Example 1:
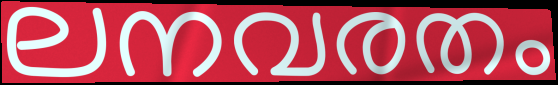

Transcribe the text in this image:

ലനവരതം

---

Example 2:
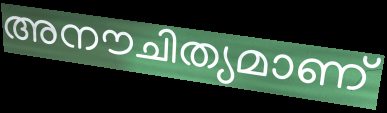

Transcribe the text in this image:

അനൗചിത്യമാണ്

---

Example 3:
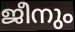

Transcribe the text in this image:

ജീനും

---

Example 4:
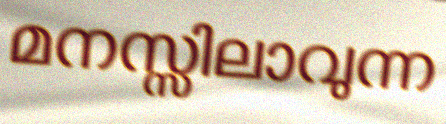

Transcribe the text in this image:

മനസ്സിലാവുന്ന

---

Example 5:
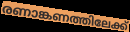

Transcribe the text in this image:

രണാങ്കണത്തിലേക്ക്